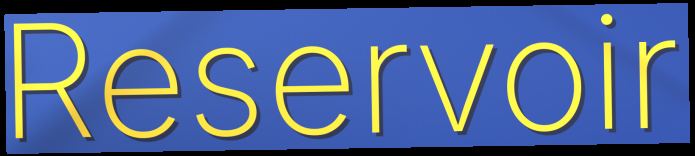
Reservoir